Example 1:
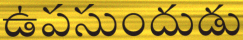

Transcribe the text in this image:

ఉపసుందుడు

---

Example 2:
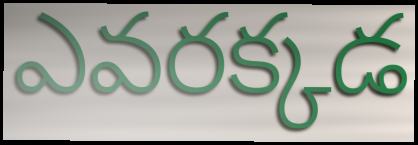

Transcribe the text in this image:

ఎవరక్కడ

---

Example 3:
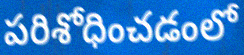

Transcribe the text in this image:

పరిశోధించడంలో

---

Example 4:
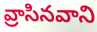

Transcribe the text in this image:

వ్రాసినవాని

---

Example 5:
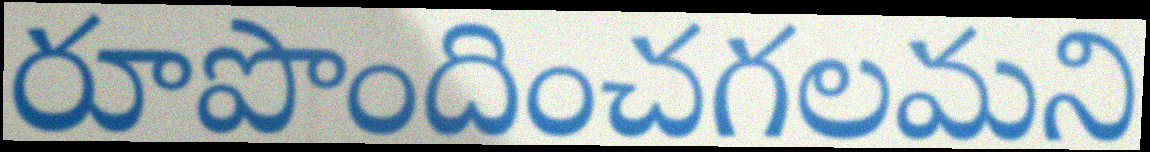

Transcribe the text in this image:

రూపొందించగలమని